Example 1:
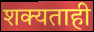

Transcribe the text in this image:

शक्‍यताही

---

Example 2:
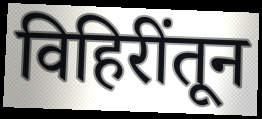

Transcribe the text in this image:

विहिरींतून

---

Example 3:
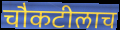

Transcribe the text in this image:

चौकटीलाच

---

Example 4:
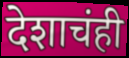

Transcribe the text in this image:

देशाचंही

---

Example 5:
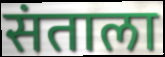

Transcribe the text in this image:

संताला